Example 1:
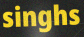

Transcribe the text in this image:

singhs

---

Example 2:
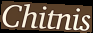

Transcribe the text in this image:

Chitnis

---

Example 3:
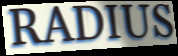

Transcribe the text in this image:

RADIUS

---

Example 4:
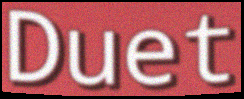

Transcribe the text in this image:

Duet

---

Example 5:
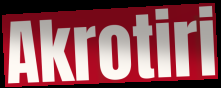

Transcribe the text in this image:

Akrotiri